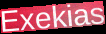
Exekias